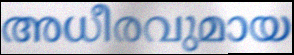
അധീരവുമായ